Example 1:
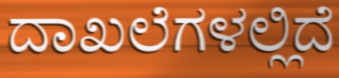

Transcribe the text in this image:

ದಾಖಲೆಗಳಲ್ಲಿದೆ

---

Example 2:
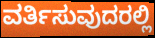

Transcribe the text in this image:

ವರ್ತಿಸುವುದರಲ್ಲಿ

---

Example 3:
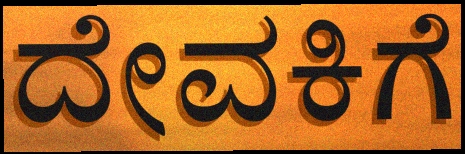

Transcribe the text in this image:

ದೇವಕಿಗೆ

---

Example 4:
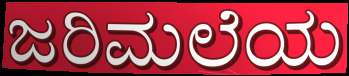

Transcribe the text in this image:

ಜರಿಮಲೆಯ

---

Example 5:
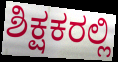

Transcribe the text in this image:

ಶಿಕ್ಷಕರಲ್ಲಿ